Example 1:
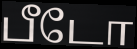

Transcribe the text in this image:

பீடோ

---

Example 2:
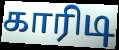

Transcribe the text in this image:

காரிடி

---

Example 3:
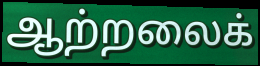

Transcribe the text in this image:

ஆற்றலைக்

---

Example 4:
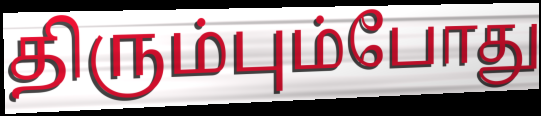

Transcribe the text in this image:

திரும்பும்போது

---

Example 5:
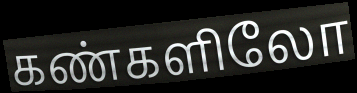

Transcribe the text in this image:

கண்களிலோ